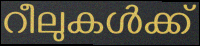
റീലുകൾക്ക്